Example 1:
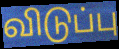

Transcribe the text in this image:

விடுப்பு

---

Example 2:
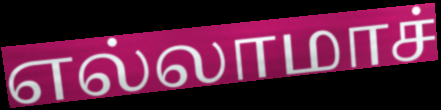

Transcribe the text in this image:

எல்லாமாச்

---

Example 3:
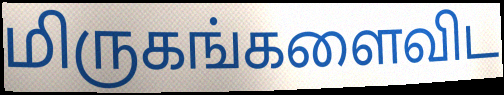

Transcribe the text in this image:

மிருகங்களைவிட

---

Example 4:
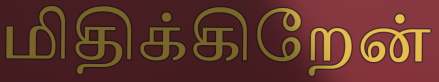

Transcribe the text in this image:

மிதிக்கிறேன்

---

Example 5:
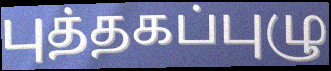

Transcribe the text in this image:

புத்தகப்புழு